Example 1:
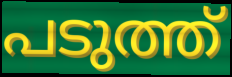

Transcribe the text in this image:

പടുത്ത്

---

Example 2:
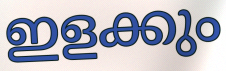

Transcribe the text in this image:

ഇളക്കും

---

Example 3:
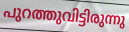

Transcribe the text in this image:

പുറത്തുവിട്ടിരുന്നു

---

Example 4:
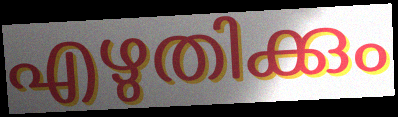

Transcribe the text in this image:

എഴുതിക്കും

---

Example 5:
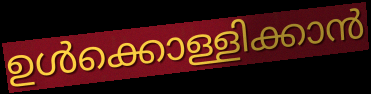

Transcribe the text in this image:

ഉൾക്കൊള്ളിക്കാൻ